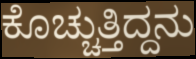
ಕೊಚ್ಚುತ್ತಿದ್ದನು